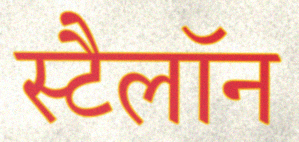
स्टैलॉन